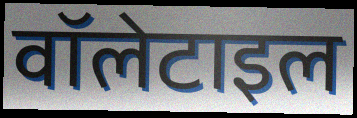
वॉलेटाइल